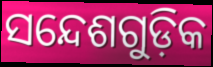
ସନ୍ଦେଶଗୁଡ଼ିକ